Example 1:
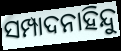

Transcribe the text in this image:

ସମ୍ପାଦନାହିନ୍ଦୁ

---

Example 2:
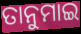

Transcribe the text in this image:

ତାନୁମାଇ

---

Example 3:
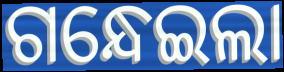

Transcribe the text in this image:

ଗନ୍ଧେଇଲା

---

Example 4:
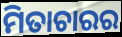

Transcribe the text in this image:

ମିତାଚାରର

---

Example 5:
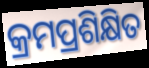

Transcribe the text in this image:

କ୍ରମପ୍ରଶିକ୍ଷିତ